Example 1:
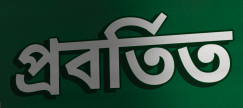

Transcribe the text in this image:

প্রবর্তিত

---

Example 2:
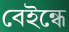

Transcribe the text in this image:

বেইন্ধে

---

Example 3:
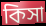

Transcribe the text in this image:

কিসা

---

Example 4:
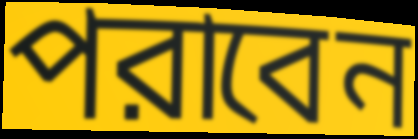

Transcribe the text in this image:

পরাবেন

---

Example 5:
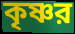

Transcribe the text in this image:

কৃষ্ণর